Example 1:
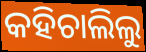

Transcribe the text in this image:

କହିଚାଲିଲୁ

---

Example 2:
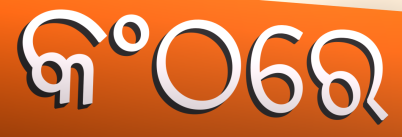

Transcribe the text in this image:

କଂଠରେ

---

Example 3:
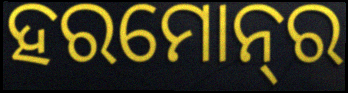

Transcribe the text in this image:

ହରମୋନ୍‍ର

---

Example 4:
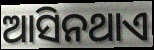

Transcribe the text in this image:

ଆସିନଥାଏ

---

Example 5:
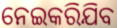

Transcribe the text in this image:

ନେଇକରିଯିବ